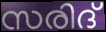
സരിദ്